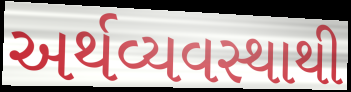
અર્થવ્યવસ્થાથી